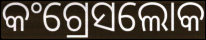
କଂଗ୍ରେସଲୋକ